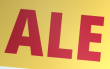
ALE